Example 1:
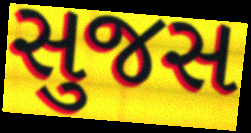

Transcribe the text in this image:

સુજસ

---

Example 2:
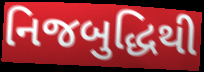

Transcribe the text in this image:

નિજબુદ્ધિથી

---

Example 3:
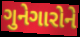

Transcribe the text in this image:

ગુનેગારોને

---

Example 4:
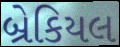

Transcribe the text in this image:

બ્રેકિયલ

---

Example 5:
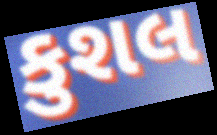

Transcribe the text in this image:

કુશલ